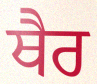
ਥੈਰ